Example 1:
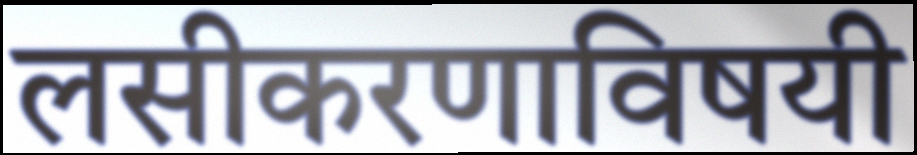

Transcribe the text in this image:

लसीकरणाविषयी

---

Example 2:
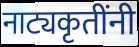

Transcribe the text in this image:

नाट्यकृतींनी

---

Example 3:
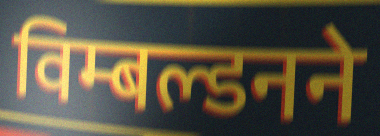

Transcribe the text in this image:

विम्बल्डनने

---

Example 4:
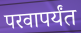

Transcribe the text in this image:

परवापर्यंत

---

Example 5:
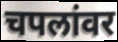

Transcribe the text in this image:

चपलांवर